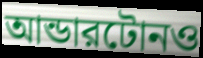
আন্ডারটোনও